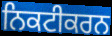
ਨਿਕਟੀਕਰਨ